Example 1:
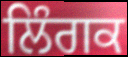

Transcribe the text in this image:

ਲਿੰਗਕ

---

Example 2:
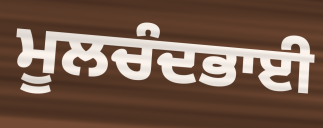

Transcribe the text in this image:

ਮੂਲਚੰਦਭਾਈ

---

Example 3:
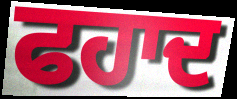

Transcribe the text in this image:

ਫਹਾਦ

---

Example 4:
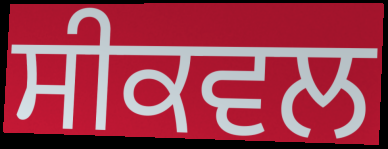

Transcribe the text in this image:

ਸੀਕਵਲ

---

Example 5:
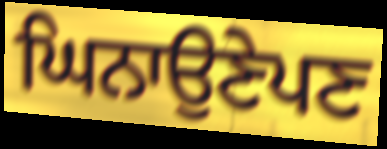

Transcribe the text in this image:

ਘਿਨਾਉਣੇਪਣ